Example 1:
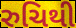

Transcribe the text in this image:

રુચિથી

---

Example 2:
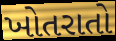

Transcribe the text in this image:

ખોતરાતો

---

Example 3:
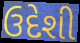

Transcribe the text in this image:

ઉદેશી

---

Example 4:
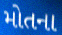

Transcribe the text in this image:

મોતના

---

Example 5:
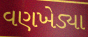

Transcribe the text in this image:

વણખેડ્યા